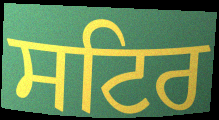
ਸਟਿਰ